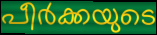
പീർക്കയുടെ